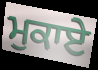
ਮੁਕਾਏ